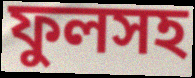
ফুলসহ